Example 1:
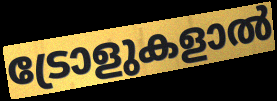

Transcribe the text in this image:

ട്രോളുകളാൽ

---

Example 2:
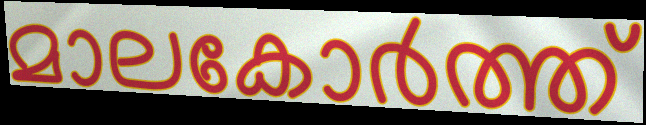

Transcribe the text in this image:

മാലകോർത്ത്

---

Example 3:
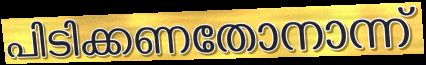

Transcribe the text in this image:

പിടിക്കണതോനാന്ന്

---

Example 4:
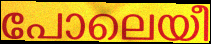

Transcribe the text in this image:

പോലെയീ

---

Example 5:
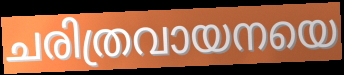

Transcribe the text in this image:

ചരിത്രവായനയെ